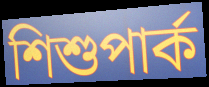
শিশুপার্ক